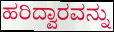
ಹರಿದ್ವಾರವನ್ನು